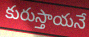
కురుస్తాయనే